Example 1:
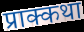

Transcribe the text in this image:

प्राक्कथा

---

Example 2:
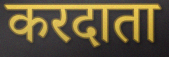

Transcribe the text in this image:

करदाता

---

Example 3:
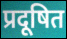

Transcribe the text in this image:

प्रदूषित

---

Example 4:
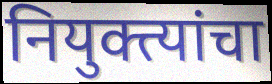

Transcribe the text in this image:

नियुक्त्यांचा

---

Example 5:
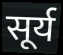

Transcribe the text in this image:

सूर्य